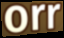
orr